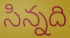
సిన్నది